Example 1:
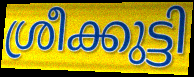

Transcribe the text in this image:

ശ്രീക്കുട്ടി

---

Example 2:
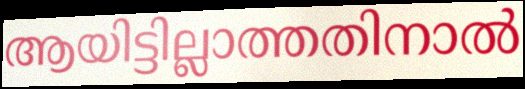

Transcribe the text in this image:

ആയിട്ടില്ലാത്തതിനാൽ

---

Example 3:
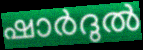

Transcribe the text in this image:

ഷാർദുൽ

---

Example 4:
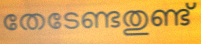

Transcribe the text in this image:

തേടേണ്ടതുണ്ട്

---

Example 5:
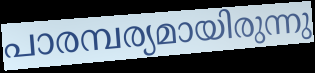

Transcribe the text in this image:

പാരമ്പര്യമായിരുന്നു